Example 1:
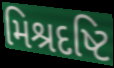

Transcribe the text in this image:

મિશ્રદષ્ટિ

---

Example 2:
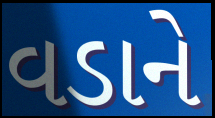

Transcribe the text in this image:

વડાને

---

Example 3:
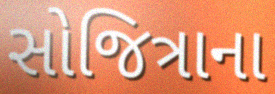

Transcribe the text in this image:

સોજિત્રાના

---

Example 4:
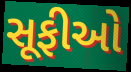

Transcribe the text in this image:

સૂફીઓ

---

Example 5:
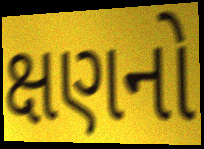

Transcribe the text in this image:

ક્ષણનો